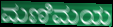
ಮಣಿಮಯ